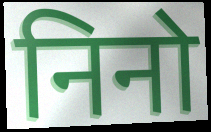
निनो